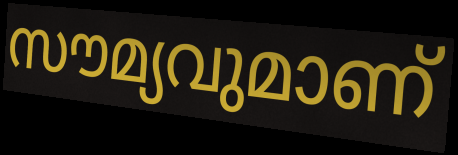
സൗമ്യവുമാണ്